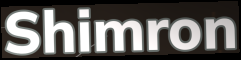
Shimron